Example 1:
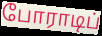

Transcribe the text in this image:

போராடிப்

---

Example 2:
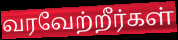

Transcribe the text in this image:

வரவேற்றீர்கள்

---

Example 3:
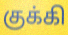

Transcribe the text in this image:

குக்கி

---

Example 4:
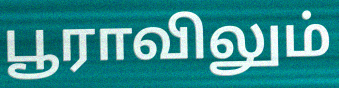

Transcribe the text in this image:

பூராவிலும்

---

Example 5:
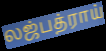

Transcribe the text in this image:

லஜ்பத்ராய்